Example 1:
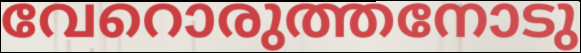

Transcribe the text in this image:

വേറൊരുത്തനോടു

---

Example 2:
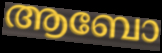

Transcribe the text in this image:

ആബോ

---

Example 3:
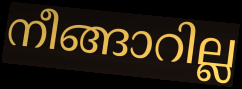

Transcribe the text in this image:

നീങ്ങാറില്ല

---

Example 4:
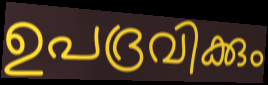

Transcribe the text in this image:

ഉപദ്രവിക്കും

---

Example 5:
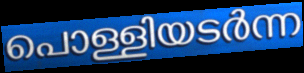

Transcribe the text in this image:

പൊള്ളിയടർന്ന